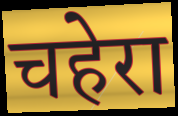
चहेरा